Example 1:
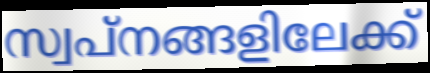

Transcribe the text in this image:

സ്വപ്നങ്ങളിലേക്ക്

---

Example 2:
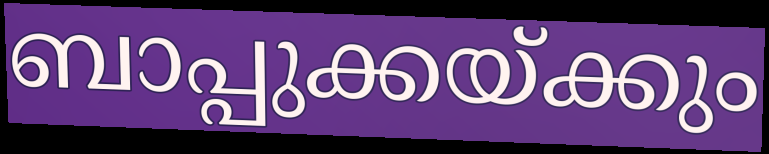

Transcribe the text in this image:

ബാപ്പുക്കയ്ക്കും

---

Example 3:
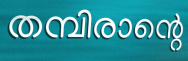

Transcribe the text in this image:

തമ്പിരാന്റെ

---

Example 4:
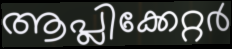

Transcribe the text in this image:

ആപ്ലിക്കേറ്റർ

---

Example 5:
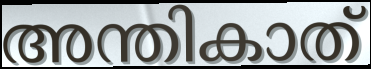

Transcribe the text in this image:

അന്തികാത്